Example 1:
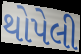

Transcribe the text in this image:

થોપેલી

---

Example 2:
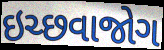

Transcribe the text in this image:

ઇચ્છવાજોગ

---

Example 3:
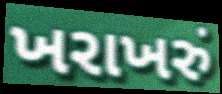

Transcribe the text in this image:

ખરાખરું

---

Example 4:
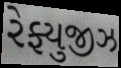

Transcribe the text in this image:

રેફ્યુજીઝ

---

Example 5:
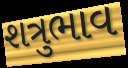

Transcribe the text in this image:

શત્રુભાવ